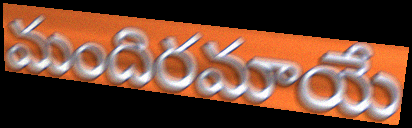
మందిరమాయే